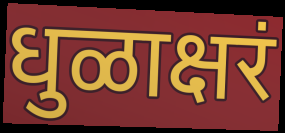
धुळाक्षरं